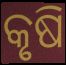
କୃଷି